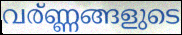
വര്ണ്ണങ്ങളുടെ